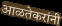
आळतेकरांनी